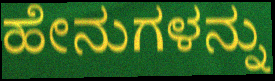
ಹೇನುಗಳನ್ನು